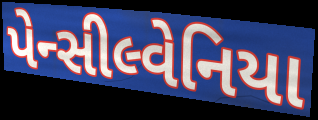
પેન્સીલ્વેનિયા